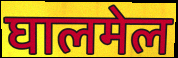
घालमेल